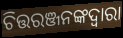
ଚିତ୍ତରଞ୍ଜନଙ୍କଦ୍ଵାରା